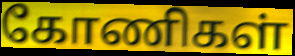
கோணிகள்